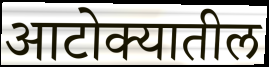
आटोक्यातील